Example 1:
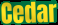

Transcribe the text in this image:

Cedar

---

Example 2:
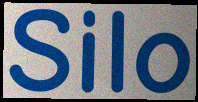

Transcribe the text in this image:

Silo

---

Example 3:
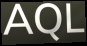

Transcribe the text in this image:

AQL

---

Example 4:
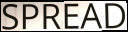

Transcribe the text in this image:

SPREAD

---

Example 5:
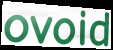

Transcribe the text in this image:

ovoid